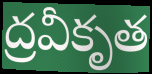
ద్రవీకృత